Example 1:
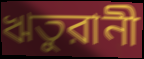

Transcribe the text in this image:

ঋতুরানী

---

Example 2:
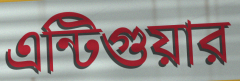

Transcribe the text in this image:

এন্টিগুয়ার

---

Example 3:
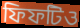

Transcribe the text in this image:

ফিফটিও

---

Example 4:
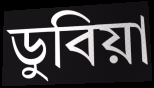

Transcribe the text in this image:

ডুবিয়া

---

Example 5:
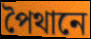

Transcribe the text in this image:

পৈথানে